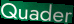
Quader